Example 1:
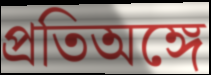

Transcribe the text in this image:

প্রতিঅঙ্গে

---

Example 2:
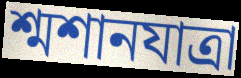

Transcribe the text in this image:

শ্মশানযাত্রা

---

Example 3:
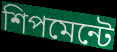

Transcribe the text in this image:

শিপমেন্টে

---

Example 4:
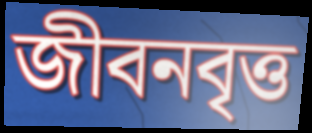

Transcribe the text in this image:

জীবনবৃত্ত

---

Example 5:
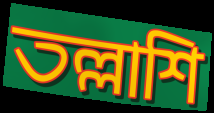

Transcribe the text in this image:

তল্লাশি